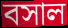
বসাল